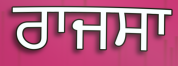
ਰਾਜਸਾ